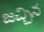
జచ్చిన